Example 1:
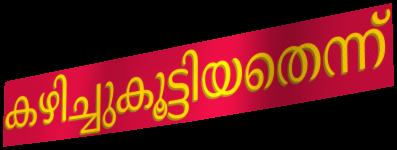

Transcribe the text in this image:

കഴിച്ചുകൂട്ടിയതെന്ന്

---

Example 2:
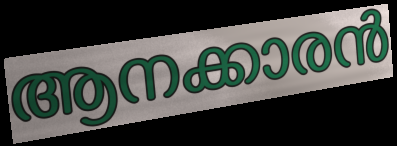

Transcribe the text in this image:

ആനക്കാരൻ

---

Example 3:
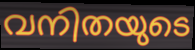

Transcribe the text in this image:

വനിതയുടെ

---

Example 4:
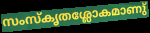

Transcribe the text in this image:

സംസ്കൃതശ്ലോകമാണു്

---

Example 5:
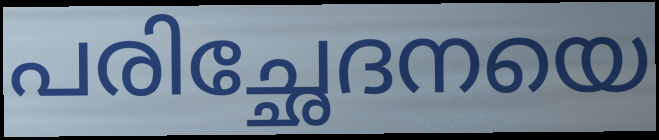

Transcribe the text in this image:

പരിച്ഛേദനയെ